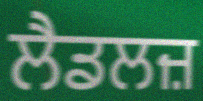
ਲੈਡਲਜ਼